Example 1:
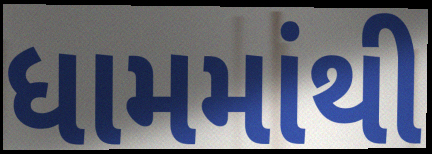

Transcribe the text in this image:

ધામમાંથી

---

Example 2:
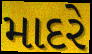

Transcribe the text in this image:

માદરે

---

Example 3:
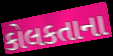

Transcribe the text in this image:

કોલકતાના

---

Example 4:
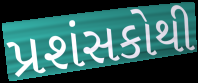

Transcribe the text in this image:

પ્રશંસકોથી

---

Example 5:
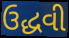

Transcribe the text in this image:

ઉદ્ધવી